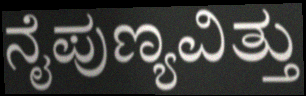
ನೈಪುಣ್ಯವಿತ್ತು